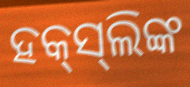
ହକ୍‌ସ୍‌ଲିଙ୍କ